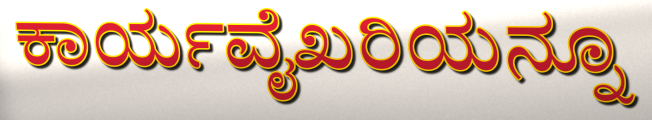
ಕಾರ್ಯವೈಖರಿಯನ್ನೂ